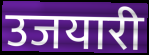
उजयारी